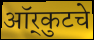
ऑर्कुटचे